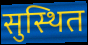
सुस्थित